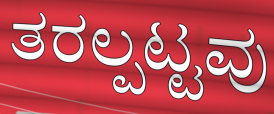
ತರಲ್ಪಟ್ಟವು